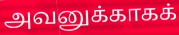
அவனுக்காகக்